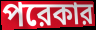
পরেকার